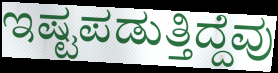
ಇಷ್ಟಪಡುತ್ತಿದ್ದೆವು